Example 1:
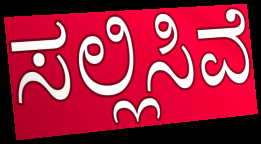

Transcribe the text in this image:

ಸಲ್ಲಿಸಿವೆ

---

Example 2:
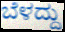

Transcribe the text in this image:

ಬೆಳದ್ದು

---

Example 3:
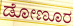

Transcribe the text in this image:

ಡೋಣೂರ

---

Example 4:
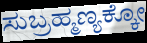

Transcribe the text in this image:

ಸುಬ್ರಹ್ಮಣ್ಯಕ್ಕೋ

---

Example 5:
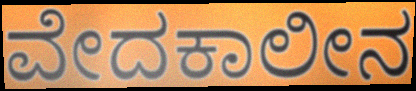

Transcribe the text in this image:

ವೇದಕಾಲೀನ